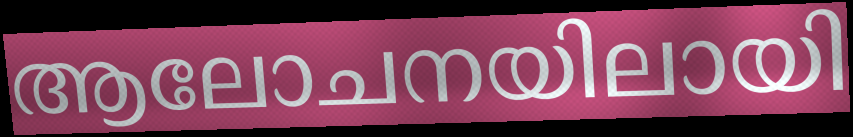
ആലോചനയിലായി